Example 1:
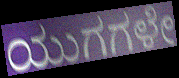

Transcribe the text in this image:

ಯುಗಗಳೇ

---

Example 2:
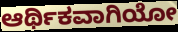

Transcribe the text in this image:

ಆರ್ಥಿಕವಾಗಿಯೋ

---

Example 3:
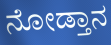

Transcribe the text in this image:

ನೋಡ್ತಾನ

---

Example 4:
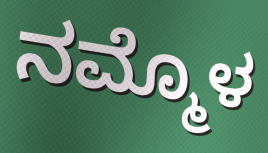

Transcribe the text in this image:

ನಮ್ಮೊಳ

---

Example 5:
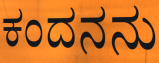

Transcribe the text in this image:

ಕಂದನನು